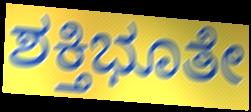
ಶಕ್ತಿಭೂತೇ